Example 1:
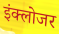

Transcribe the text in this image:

इंक्लोजर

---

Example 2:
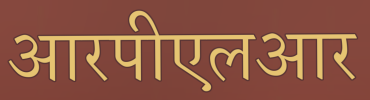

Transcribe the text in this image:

आरपीएलआर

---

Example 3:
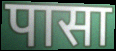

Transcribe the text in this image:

पासा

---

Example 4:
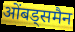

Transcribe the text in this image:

ओंबड्समैन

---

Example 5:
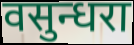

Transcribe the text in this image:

वसुन्धरा